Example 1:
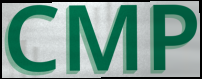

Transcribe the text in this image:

CMP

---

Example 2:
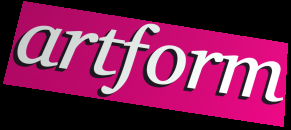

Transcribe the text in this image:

artform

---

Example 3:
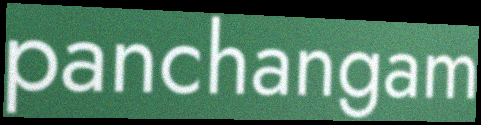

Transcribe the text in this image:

panchangam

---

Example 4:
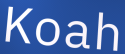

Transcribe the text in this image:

Koah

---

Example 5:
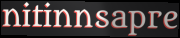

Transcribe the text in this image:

nitinnsapre